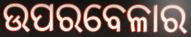
ଉପରବେଳାର